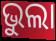
ଭୁଲା